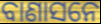
ବାଣାସନେ